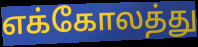
எக்கோலத்து